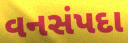
વનસંપદા